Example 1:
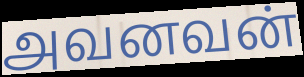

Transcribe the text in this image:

அவனவன்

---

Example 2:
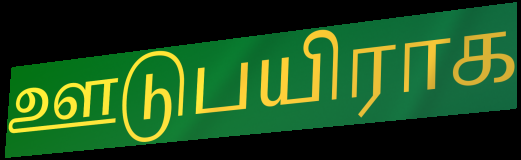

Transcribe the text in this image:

ஊடுபயிராக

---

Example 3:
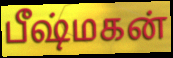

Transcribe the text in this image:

பீஷ்மகன்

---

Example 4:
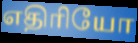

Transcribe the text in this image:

எதிரியோ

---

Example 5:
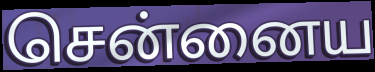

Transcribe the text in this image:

சென்னைய